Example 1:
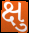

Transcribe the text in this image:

ક્ષુ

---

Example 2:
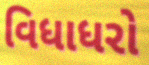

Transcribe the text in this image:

વિધાધરો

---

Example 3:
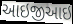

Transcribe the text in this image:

આઇજીઆઇ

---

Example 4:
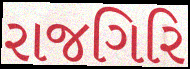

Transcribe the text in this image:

રાજગિરિ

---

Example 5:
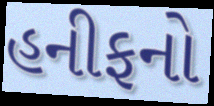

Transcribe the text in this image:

હનીફનો